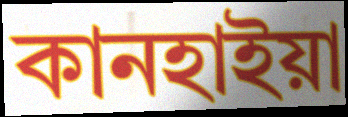
কানহাইয়া